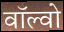
वॉल्वो